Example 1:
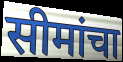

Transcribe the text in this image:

सीमांचा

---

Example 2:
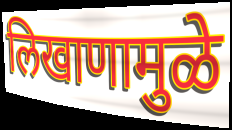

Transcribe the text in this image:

लिखाणामुळे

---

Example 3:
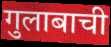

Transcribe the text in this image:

गुलाबाची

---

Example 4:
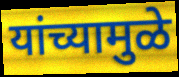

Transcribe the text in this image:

यांच्यामुळे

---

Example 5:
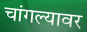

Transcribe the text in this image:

चांगल्यावर